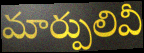
మార్పులివీ